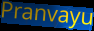
Pranvayu